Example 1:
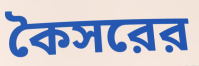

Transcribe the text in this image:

কৈসরের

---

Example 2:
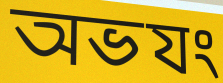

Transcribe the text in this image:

অভযং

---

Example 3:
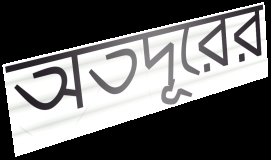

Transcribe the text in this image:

অতদূরের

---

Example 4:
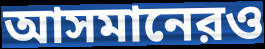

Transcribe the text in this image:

আসমানেরও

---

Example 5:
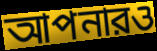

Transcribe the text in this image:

আপনারও